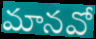
మానవో